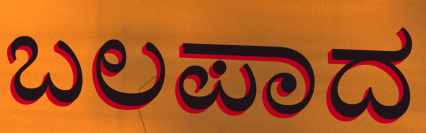
ಬಲಪಾದ